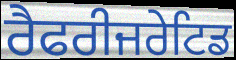
ਰੈਫਰੀਜਰੇਟਿਡ